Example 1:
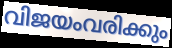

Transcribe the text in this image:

വിജയംവരിക്കും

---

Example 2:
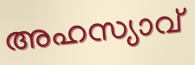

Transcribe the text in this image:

അഹസ്യാവ്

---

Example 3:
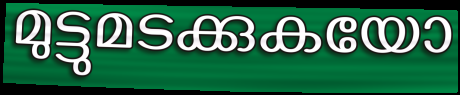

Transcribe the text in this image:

മുട്ടുമടക്കുകയോ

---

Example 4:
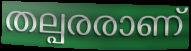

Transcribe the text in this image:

തല്പരരാണ്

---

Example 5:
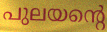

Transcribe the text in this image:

പുലയന്റെ